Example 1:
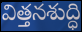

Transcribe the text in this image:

విత్తనశుద్ధి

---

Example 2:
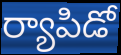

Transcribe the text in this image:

ర్యాపిడో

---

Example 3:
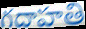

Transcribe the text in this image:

గదాహతి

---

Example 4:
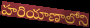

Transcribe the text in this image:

హరియాణాలోని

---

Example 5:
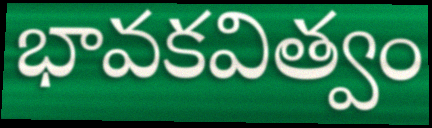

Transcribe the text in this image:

భావకవిత్వం